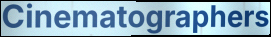
Cinematographers